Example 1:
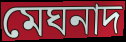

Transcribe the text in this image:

মেঘনাদ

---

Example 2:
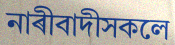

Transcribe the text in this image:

নাৰীবাদীসকলে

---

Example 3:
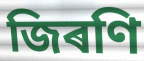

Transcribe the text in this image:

জিৰণি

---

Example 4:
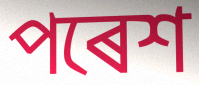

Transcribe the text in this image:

পৰেশ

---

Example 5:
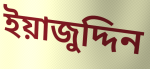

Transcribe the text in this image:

ইয়াজুদ্দিন